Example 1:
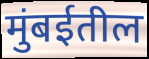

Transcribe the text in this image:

मुंबईतील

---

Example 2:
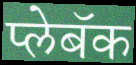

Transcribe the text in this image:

प्लेबॅक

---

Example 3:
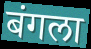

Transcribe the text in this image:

बंगला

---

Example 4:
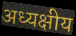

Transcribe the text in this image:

अध्यक्षीय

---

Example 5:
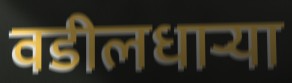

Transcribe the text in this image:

वडीलधार्‍या